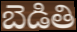
బెడితి